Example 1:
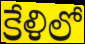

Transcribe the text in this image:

కేళిలో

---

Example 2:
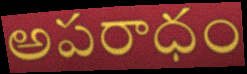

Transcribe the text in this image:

అపరాధం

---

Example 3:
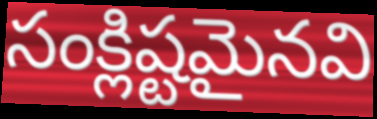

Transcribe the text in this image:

సంక్లిష్టమైనవి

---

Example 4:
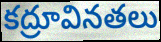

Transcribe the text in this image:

కద్రూవినతలు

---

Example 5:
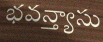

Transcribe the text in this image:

భవన్త్యాసు